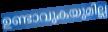
ഉണ്ടാവുകയുമില്ല